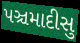
પઞ્ચમાદીસુ